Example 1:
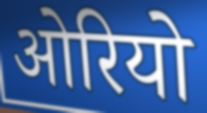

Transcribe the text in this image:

ओरियो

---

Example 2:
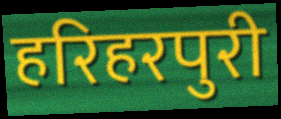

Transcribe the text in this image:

हरिहरपुरी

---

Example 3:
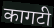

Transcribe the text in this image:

कागटी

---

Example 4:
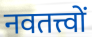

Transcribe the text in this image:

नवतत्त्वों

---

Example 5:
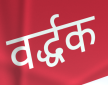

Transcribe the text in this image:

वर्द्धक